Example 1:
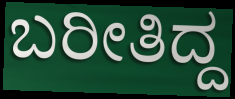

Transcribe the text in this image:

ಬರೀತಿದ್ದ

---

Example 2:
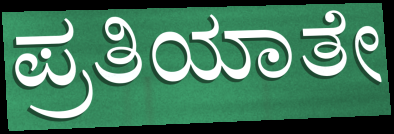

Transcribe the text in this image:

ಪ್ರತಿಯಾತೇ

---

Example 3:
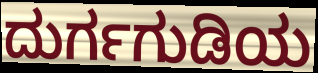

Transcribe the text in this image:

ದುರ್ಗಗುಡಿಯ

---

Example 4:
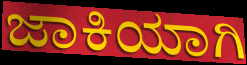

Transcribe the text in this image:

ಜಾಕಿಯಾಗಿ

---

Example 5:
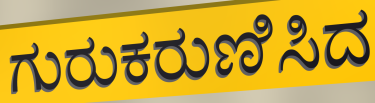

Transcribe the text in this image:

ಗುರುಕರುಣಿಸಿದ